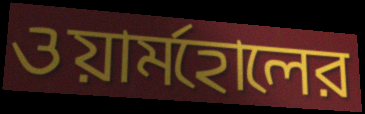
ওয়ার্মহোলের